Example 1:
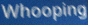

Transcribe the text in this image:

Whooping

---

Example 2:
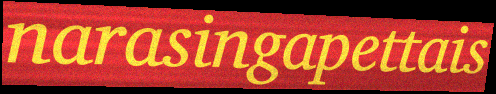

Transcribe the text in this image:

narasingapettais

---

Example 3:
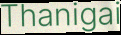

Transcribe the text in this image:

Thanigai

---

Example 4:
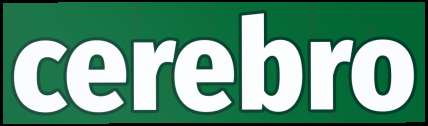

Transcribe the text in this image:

cerebro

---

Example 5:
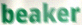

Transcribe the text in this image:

beaker